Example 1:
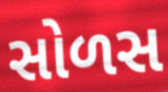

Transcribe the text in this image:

સોળસ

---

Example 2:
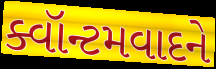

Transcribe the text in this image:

ક્વૉન્ટમવાદને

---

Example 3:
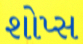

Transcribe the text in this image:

શોપ્સ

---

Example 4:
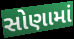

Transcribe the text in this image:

સોણામાં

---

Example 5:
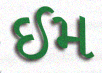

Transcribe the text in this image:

ઈમ